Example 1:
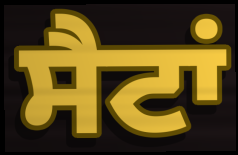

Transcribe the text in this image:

ਸੈਟਾਂ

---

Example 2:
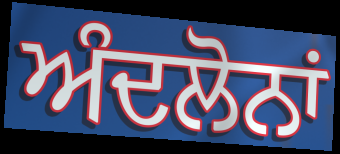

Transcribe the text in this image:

ਅੰਦਲੋਨਾਂ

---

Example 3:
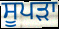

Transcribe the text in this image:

ਸੂਪੜਾ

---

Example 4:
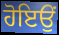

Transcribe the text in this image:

ਹੋਇਉਂ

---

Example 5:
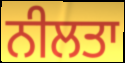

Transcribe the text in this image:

ਨੀਲਤਾ